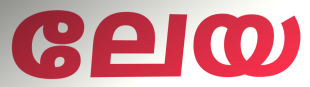
ലേയ